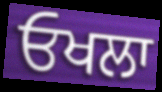
ਓਖਲਾ